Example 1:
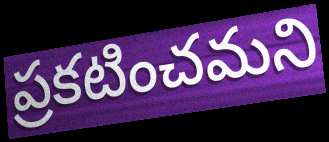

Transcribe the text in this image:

ప్రకటించమని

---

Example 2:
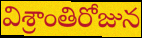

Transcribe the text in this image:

విశ్రాంతిరోజున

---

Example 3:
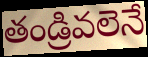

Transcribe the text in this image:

తండ్రివలెనే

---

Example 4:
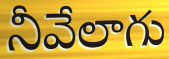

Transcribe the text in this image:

నీవేలాగు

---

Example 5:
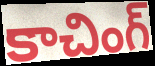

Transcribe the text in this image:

కాచింగ్